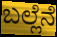
ಬಲ್ಲೆನೆ